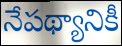
నేపథ్యానికీ